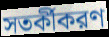
সতর্কীকরণ